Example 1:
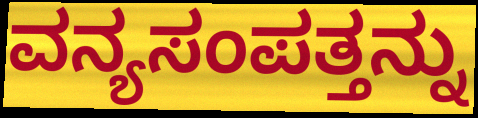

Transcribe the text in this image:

ವನ್ಯಸಂಪತ್ತನ್ನು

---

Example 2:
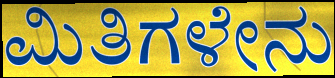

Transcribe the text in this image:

ಮಿತಿಗಳೇನು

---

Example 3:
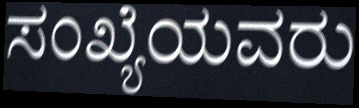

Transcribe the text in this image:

ಸಂಖ್ಯೆಯವರು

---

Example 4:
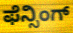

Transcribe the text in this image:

ಫೆನ್ಸಿಂಗ್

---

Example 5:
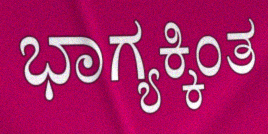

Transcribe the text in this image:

ಭಾಗ್ಯಕ್ಕಿಂತ